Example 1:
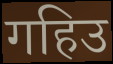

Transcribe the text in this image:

गहिउ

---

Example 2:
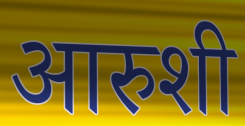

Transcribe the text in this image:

आरुशी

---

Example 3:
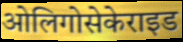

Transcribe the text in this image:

ओलिगोसेकेराइड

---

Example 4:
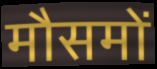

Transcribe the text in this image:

मौसमों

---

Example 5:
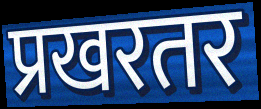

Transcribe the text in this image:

प्रखरतर